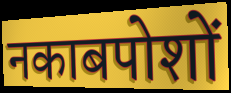
नकाबपोशों